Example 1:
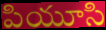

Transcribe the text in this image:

పియూసి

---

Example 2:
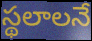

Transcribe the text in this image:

స్థలాలనే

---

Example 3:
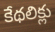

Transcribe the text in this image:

కేథలిక్లు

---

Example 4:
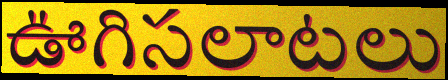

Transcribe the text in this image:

ఊగిసలాటలు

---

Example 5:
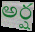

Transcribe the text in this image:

అర్ష